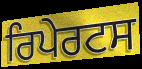
ਰਿਪੇਰਟਸ